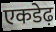
एकडेढ़